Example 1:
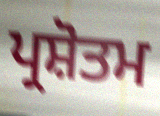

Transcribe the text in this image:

ਪ੍ਰਸ਼ੋਤਮ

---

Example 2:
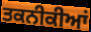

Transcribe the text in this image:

ਤਕਨੀਕੀਆਂ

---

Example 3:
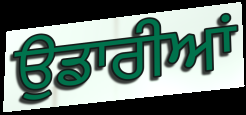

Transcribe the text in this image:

ਉੁਡਾਰੀਆਂ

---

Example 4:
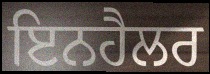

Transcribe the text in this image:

ਇਨਹੈਲਰ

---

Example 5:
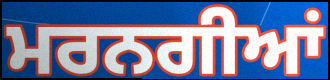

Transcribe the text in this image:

ਮਰਨਗੀਆਂ